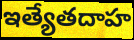
ఇత్యేతదాహ